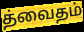
த்வைதம்